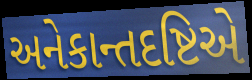
અનેકાન્તદષ્ટિએ